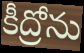
కీద్రోను